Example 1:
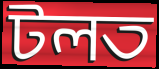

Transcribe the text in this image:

টলত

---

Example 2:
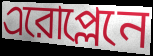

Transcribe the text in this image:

এরোপ্লেনে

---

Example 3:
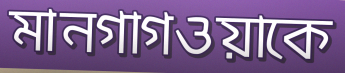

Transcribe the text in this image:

মানগাগওয়াকে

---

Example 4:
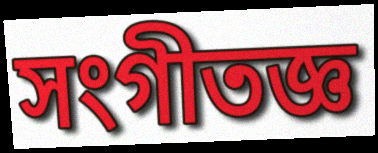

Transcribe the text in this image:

সংগীতজ্ঞ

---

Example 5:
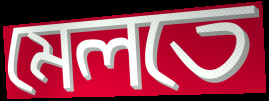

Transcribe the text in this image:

মেলতে